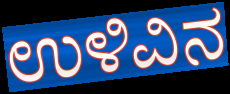
ಉಳಿವಿನ